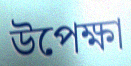
উপেক্ষা